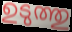
ഉടുത്തു